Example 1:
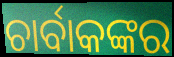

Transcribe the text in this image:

ଚାର୍ବାକଙ୍କର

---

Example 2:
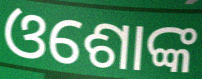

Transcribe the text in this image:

ଓଶୋଙ୍କ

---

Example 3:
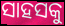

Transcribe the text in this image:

ସାହସକୁ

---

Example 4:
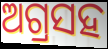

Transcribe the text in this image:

ଅଗ୍ରସହ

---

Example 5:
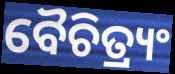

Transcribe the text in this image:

ବୈଚିତ୍ର୍ୟଂ